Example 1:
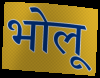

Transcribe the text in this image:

भोलू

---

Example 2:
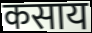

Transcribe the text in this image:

कसाय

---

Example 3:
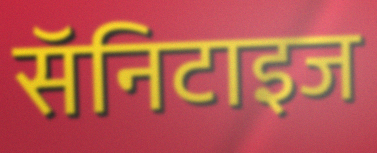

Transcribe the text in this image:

सॅनिटाइज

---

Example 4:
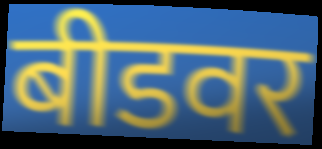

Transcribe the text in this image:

बीडवर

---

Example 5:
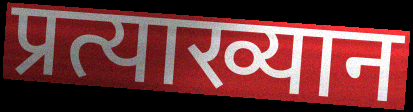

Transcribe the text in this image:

प्रत्याख्यान